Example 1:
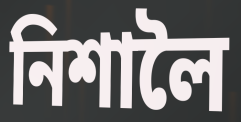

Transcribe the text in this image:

নিশালৈ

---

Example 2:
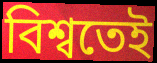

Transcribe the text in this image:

বিশ্বতেই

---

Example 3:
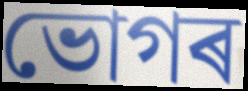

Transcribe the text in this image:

ভোগৰ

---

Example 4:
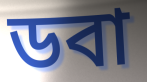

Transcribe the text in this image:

ডবা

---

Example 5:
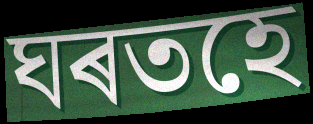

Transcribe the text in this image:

ঘৰতহে